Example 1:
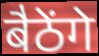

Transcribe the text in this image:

बैठेंगे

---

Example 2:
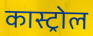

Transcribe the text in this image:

कास्ट्रोल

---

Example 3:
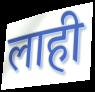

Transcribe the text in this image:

लाही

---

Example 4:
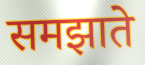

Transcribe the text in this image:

समझाते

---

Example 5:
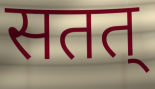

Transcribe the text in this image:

सतत्